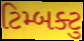
ટિમ્બક્ટુ